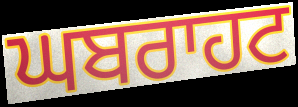
ਘਬਰਾਹਟ